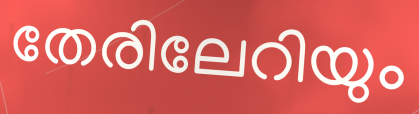
തേരിലേറിയും